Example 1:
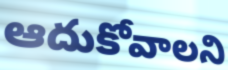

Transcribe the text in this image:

ఆదుకోవాలని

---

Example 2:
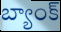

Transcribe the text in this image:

బ్యాంక్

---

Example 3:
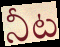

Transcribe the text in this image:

నీట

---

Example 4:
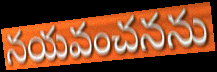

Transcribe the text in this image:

నయవంచనను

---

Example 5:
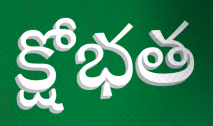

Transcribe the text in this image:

క్షోభత